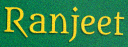
Ranjeet